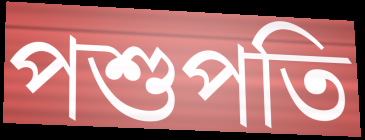
পশুপতি